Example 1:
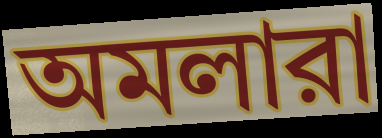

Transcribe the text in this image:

অমলারা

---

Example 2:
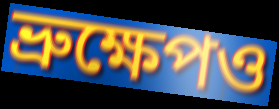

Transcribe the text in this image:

ভ্রুক্ষেপও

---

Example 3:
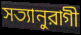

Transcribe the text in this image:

সত্যানুরাগী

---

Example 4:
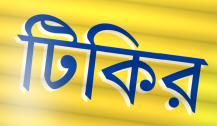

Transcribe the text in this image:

টিকির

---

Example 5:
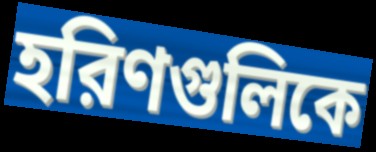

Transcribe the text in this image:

হরিণগুলিকে